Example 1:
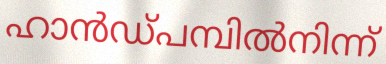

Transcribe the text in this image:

ഹാൻഡ്പമ്പിൽനിന്ന്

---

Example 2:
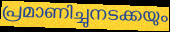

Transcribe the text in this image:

പ്രമാണിച്ചുനടക്കയും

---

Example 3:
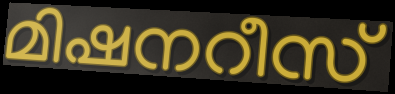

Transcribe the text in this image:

മിഷനറീസ്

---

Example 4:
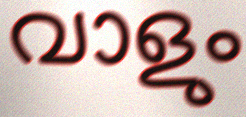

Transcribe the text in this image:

വാളും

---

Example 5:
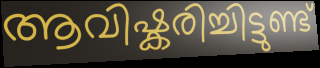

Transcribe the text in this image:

ആവിഷ്കരിച്ചിട്ടുണ്ട്